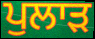
ਪੁਲਾੜ